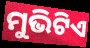
ମୁଭିଟିଏ